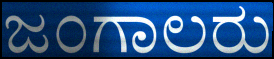
ಜಂಗಾಲರು